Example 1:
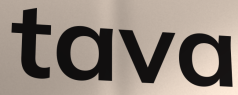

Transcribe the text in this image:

tava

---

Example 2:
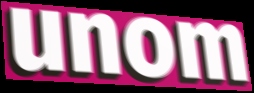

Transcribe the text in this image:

unom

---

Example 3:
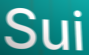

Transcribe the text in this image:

Sui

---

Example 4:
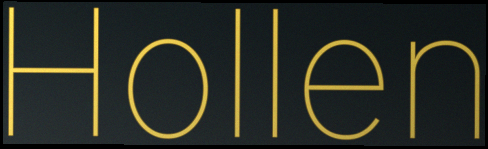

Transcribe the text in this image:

Hollen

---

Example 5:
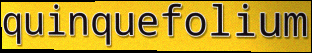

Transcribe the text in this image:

quinquefolium